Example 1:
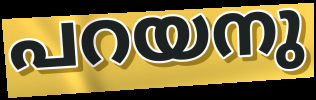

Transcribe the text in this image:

പറയനു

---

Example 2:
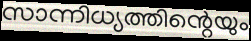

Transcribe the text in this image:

സാന്നിധ്യത്തിന്റെയും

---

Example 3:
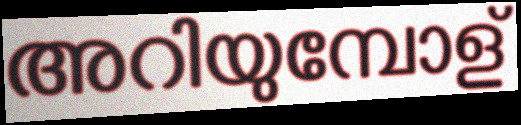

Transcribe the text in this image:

അറിയുമ്പോള്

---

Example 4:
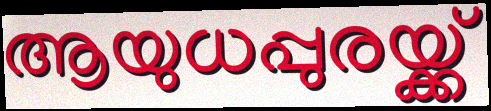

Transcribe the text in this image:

ആയുധപ്പുരയ്ക്ക്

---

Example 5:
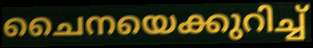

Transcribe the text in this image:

ചൈനയെക്കുറിച്ച്